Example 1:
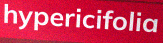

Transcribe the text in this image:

hypericifolia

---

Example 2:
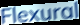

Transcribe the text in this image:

Flexural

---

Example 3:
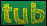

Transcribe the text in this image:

tub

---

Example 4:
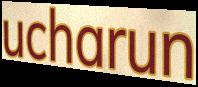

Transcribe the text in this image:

ucharun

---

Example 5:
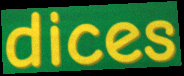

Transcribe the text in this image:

dices